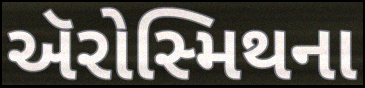
ઍરોસ્મિથના